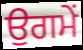
ਉਗਮੇਂ